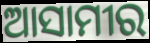
ଆସାମୀର